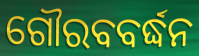
ଗୌରବବର୍ଦ୍ଧନ